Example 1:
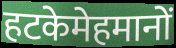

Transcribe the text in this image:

हटकेमेहमानों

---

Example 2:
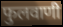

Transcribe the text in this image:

फुलवाणी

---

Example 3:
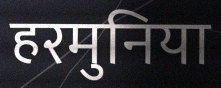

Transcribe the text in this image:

हरमुनिया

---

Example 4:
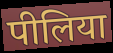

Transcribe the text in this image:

पीलिया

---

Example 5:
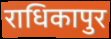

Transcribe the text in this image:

राधिकापुर